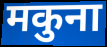
मकुना